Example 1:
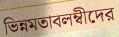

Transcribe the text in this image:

ভিন্নমতাবলম্বীদের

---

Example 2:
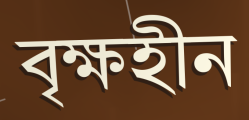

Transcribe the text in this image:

বৃক্ষহীন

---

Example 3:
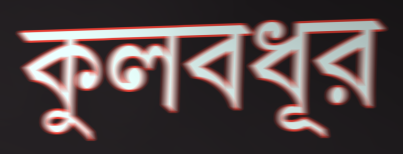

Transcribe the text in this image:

কুলবধূর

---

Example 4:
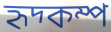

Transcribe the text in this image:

হৃদ্কম্প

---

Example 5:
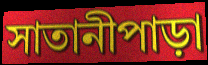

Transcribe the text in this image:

সাতানীপাড়া